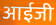
आईजी